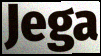
Jega